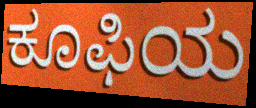
ಕೂಫಿಯ